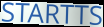
STARTTS